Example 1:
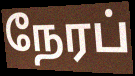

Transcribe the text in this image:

நேரப்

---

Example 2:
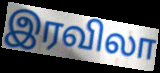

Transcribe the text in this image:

இரவிலா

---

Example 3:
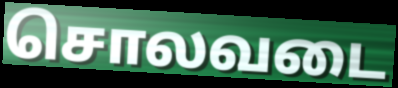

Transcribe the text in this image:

சொலவடை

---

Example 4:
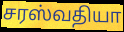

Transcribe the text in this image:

சரஸ்வதியா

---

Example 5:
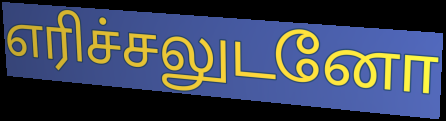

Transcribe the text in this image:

எரிச்சலுடனோ